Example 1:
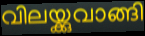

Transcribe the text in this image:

വിലയ്ക്കുവാങ്ങി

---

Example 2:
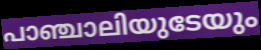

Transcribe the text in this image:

പാഞ്ചാലിയുടേയും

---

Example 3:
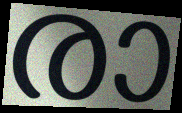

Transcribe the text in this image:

രാ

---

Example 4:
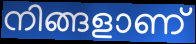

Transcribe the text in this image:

നിങ്ങളാണ്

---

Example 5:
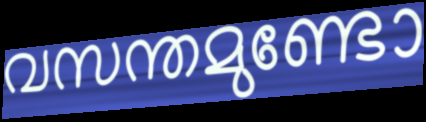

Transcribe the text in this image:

വസന്തമുണ്ടോ